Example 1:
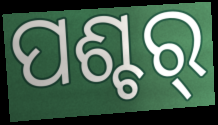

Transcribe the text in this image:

ପଶ୍ଚର୍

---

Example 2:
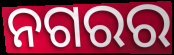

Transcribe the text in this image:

ନଗରର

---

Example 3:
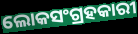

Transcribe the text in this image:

ଲୋକସଂଗ୍ରହକାରୀ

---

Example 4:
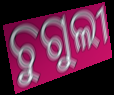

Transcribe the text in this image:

ଚୁଗୁଲୀ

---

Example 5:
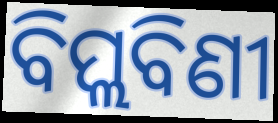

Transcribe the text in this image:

ବିପ୍ଲବିଣୀ